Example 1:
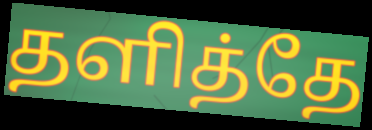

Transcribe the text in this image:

தளித்தே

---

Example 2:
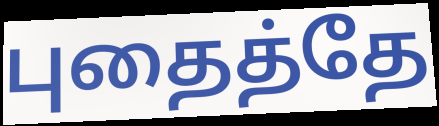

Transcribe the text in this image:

புதைத்தே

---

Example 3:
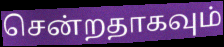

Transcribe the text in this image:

சென்றதாகவும்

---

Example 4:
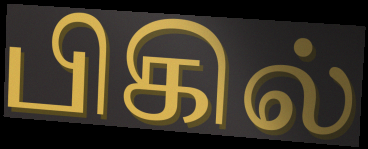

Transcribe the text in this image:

பிகில்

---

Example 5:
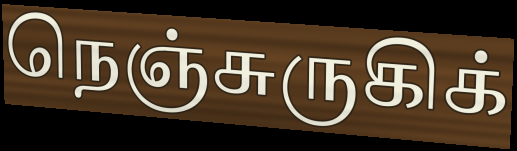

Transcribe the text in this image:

நெஞ்சுருகிக்